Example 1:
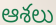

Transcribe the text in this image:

ఆశలు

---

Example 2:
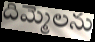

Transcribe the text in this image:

దిమ్మెలను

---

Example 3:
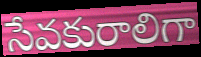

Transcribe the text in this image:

సేవకురాలిగా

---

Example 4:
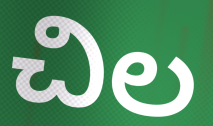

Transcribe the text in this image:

చిల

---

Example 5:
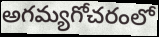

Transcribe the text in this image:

అగమ్యగోచరంలో